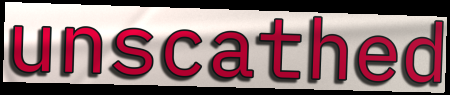
unscathed